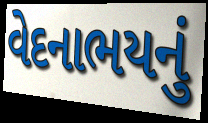
વેદનાભયનું